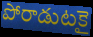
పోరాడుటకై